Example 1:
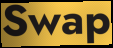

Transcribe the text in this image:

Swap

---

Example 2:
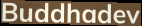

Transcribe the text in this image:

Buddhadev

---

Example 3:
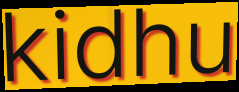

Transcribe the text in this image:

kidhu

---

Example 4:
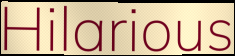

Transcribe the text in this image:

Hilarious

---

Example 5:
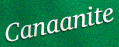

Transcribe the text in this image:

Canaanite